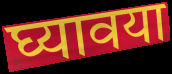
घ्यावया